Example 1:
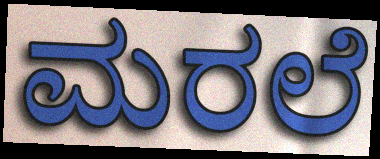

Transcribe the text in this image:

ಮರಲೆ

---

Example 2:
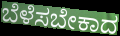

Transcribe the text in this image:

ಬೆಳೆಸಬೇಕಾದ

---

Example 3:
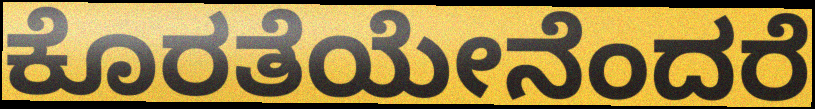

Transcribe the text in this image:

ಕೊರತೆಯೇನೆಂದರೆ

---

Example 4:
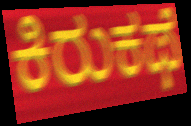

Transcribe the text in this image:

ಕಿರುಕಥೆ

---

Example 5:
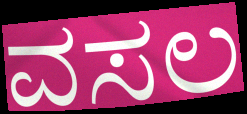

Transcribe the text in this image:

ವಸಲ